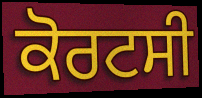
ਕੋਰਟਸੀ